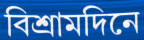
বিশ্রামদিনে